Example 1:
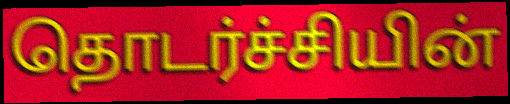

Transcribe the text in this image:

தொடர்ச்சியின்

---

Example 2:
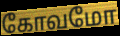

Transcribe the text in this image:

கோவமோ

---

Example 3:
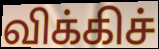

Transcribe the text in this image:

விக்கிச்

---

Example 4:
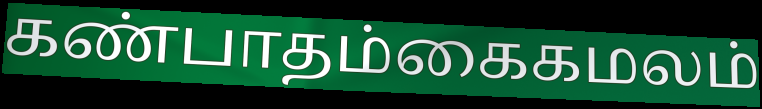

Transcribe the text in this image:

கண்பாதம்கைகமலம்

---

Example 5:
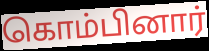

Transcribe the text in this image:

கொம்பினார்